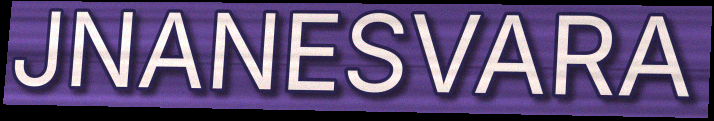
JNANESVARA